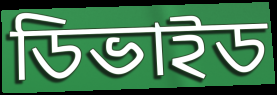
ডিভাইড